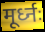
मूर्ध्नः